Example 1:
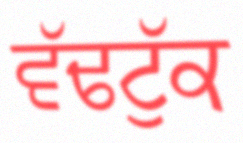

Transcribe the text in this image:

ਵੱਢਟੁੱਕ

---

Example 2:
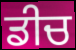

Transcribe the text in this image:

ਡੀਚ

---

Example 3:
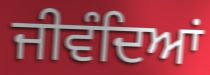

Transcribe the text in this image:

ਜੀਵੰਦਿਆਂ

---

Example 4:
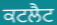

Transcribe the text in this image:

ਕਟਲੈਟ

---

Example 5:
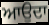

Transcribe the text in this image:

ਆਉਦਾ